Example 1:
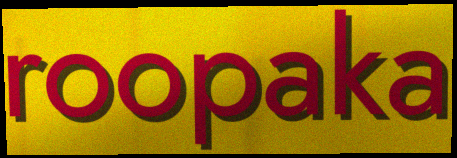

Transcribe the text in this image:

roopaka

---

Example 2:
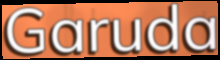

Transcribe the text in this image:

Garuda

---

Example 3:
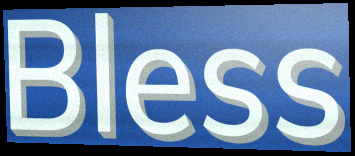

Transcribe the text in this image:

Bless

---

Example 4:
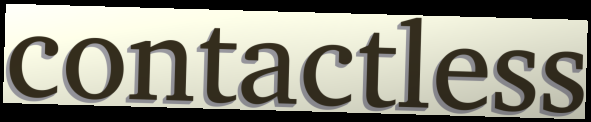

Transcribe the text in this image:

contactless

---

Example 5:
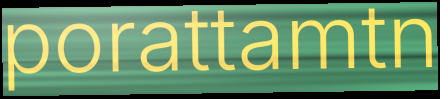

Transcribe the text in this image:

porattamtn